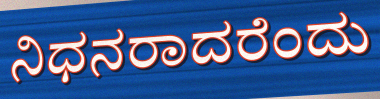
ನಿಧನರಾದರೆಂದು